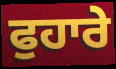
ਫੁਹਾਰੇ